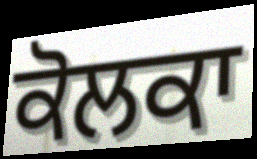
ਕੋਲਕਾ